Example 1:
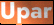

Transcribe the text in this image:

Upar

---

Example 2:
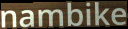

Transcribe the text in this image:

nambike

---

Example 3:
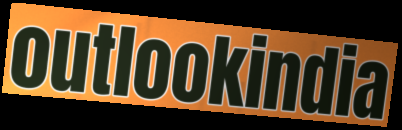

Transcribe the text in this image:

outlookindia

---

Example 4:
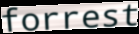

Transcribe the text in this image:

forrest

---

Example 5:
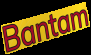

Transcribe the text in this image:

Bantam